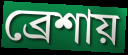
ব্রেশায়